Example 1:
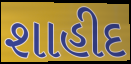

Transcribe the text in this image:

શાહીદ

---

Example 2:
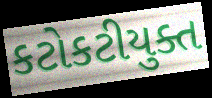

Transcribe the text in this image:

કટોકટીયુક્ત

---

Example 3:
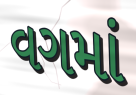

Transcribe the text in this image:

વગમાં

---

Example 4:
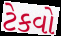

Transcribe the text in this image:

ટેકવો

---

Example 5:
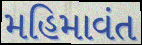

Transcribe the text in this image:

મહિમાવંત